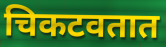
चिकटवतात